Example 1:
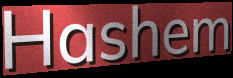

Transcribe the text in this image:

Hashem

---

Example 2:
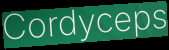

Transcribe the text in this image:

Cordyceps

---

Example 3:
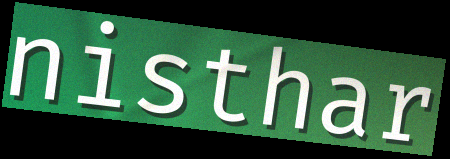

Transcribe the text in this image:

nisthar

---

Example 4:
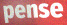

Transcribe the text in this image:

pense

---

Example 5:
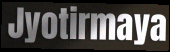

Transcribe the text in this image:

Jyotirmaya